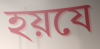
হয়যে